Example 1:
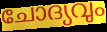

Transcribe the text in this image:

ചോദ്യവും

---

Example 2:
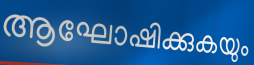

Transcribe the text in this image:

ആഘോഷിക്കുകയും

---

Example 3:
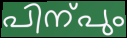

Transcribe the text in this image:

പിന്പും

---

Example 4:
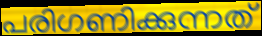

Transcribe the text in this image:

പരിഗണിക്കുന്നത്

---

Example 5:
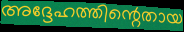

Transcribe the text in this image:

അദ്ദേഹത്തിന്റെതായ